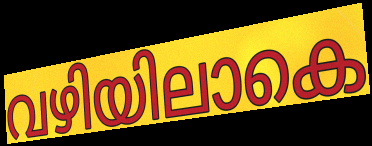
വഴിയിലാകെ